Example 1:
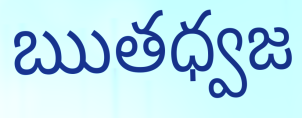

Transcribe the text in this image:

ఋతధ్వజ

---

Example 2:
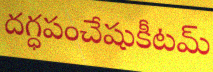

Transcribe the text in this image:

దగ్ధపంచేషుకీటమ్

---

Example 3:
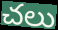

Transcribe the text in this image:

చలు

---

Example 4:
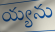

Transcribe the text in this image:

య్యను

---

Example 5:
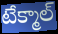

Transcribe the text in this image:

టేక్మాల్